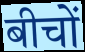
बीचों